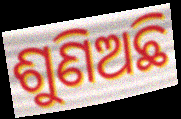
ଶୁଣିଅଛି